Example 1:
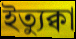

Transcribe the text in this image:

ইত্যুক্বা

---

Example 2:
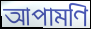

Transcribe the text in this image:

আপামণি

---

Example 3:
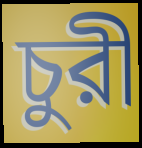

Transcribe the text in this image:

চুরী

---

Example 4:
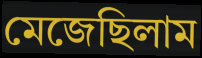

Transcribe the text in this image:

মেজেছিলাম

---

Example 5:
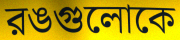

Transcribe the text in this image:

রঙগুলোকে